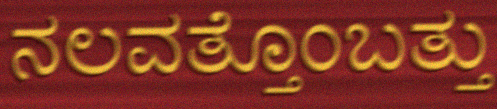
ನಲವತ್ತೊಂಬತ್ತು